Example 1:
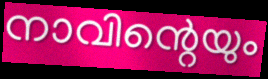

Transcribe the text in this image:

നാവിന്റെയും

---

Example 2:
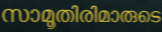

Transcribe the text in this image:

സാമൂതിരിമാരുടെ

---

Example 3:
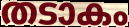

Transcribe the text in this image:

തടാകം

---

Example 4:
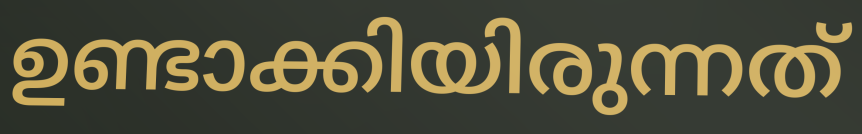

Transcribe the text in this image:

ഉണ്ടാക്കിയിരുന്നത്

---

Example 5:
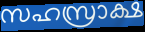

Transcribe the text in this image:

സഹസ്രാക്ഷ